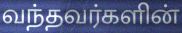
வந்தவர்களின்